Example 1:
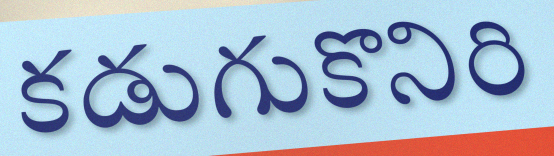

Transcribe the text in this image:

కడుగుకొనిరి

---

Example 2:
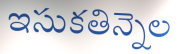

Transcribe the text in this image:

ఇసుకతిన్నెల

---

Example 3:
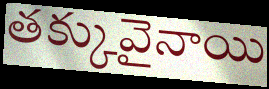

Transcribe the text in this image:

తక్కువైనాయి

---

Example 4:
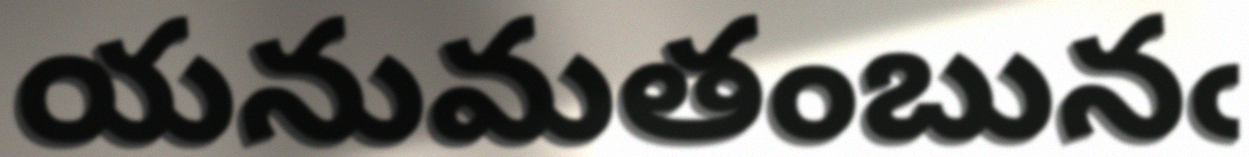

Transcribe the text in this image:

యనుమతంబునఁ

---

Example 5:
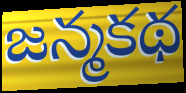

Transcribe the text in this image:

జన్మకథ